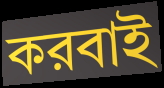
করবাই